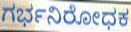
ಗರ್ಭನಿರೋಧಕ